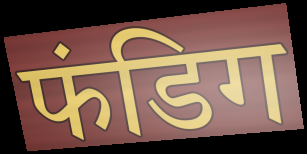
फंडिग